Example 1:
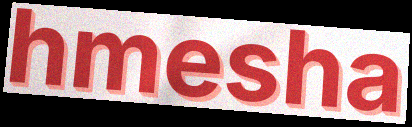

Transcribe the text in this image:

hmesha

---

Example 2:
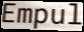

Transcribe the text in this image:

Empul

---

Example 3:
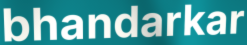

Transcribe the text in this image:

bhandarkar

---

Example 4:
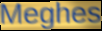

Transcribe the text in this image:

Meghes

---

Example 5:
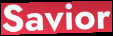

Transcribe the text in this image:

Savior